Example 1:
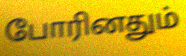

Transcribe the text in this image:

போரினதும்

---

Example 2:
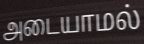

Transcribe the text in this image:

அடையாமல்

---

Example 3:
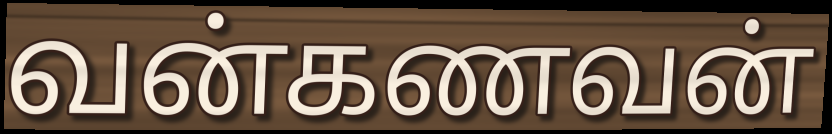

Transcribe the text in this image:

வன்கணவன்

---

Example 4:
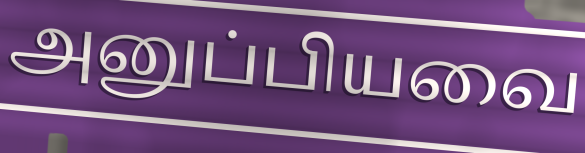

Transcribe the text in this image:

அனுப்பியவை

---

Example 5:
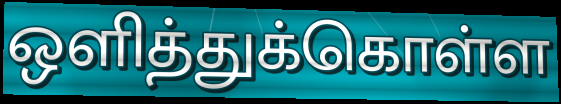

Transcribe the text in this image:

ஒளித்துக்கொள்ள